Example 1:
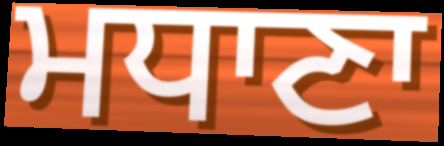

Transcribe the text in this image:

ਮਧਾਣਾ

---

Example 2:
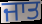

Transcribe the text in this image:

ਜਾਤ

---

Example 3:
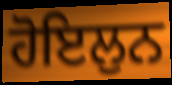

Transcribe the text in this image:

ਹੋਇਲੁਨ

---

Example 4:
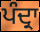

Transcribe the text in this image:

ਪੰਦ੍ਰਾ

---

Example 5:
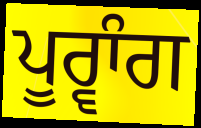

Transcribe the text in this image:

ਪੂਰ੍ਵਾੰਗ